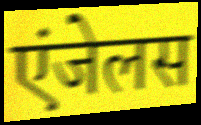
एंजेलस